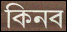
কিনব